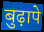
बुढ़ापे